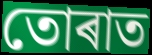
তোৰাত